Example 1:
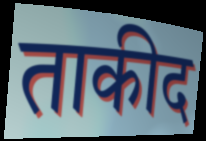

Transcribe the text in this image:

ताकीद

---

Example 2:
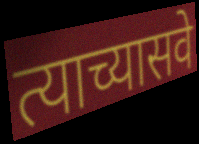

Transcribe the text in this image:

त्याच्यासवे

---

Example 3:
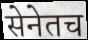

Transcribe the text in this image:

सेनेतच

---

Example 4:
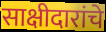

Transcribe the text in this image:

साक्षीदारांचे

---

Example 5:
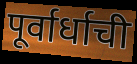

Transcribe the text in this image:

पूर्वार्धाची